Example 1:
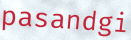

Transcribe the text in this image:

pasandgi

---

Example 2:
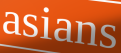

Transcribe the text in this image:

asians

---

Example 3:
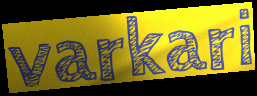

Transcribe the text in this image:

varkari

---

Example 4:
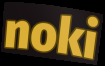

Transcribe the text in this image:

noki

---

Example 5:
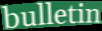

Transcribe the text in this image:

bulletin